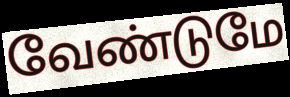
வேண்டுமே